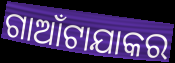
ଗାଆଁଟାଯାକର